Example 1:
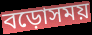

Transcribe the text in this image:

বড়োসময়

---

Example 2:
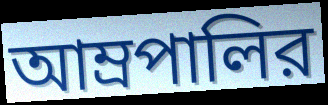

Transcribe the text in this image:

আম্রপালির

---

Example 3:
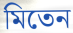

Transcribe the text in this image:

মিতেন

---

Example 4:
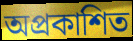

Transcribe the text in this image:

অপ্রকাশিত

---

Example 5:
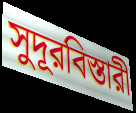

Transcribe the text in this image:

সুদূরবিস্তারী